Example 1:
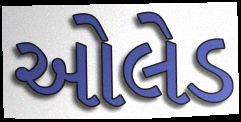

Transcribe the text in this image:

ઓલેડ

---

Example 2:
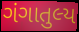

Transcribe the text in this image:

ગંગાતુલ્ય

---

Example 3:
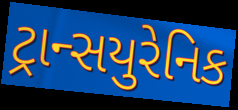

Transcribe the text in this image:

ટ્રાન્સયુરેનિક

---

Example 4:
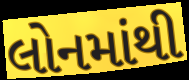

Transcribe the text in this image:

લોનમાંથી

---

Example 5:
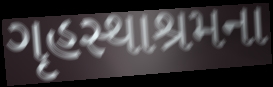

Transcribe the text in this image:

ગૃહસ્થાશ્રમના